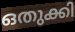
ഒതുക്കി